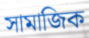
সামাজিক